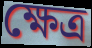
ক্ষেত্ৰ